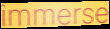
immerse